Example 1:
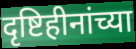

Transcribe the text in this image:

दृष्टिहीनांच्या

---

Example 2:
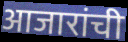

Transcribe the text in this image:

आजारांची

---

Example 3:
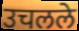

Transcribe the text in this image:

उचलले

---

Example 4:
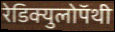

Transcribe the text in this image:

रेडिक्युलोपॅथी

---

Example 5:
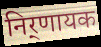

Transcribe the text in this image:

निर्णायक